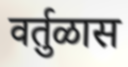
वर्तुळास